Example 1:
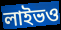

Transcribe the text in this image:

লাইভও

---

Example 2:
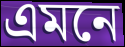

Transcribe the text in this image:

এমনে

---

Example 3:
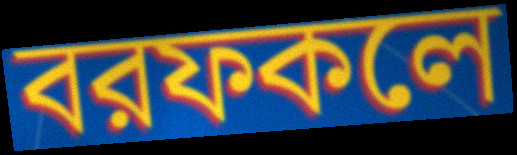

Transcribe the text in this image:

বরফকলে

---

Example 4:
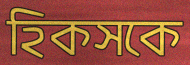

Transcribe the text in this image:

হিকসকে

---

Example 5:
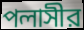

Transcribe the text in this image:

পলাসীর